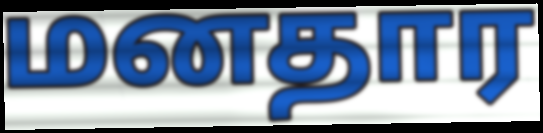
மனதார